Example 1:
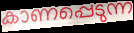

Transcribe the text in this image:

കാണപ്പെടുന്ന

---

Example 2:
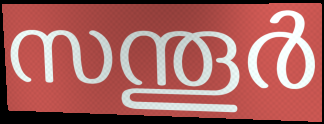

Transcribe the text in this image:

സന്തൂർ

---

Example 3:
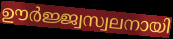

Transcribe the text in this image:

ഊർജ്ജ്വസ്വലനായി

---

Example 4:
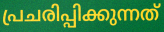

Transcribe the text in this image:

പ്രചരിപ്പിക്കുന്നത്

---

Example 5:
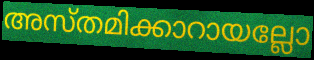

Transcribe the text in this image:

അസ്തമിക്കാറായല്ലോ